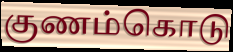
குணம்கொடு